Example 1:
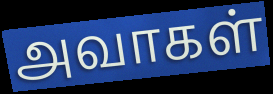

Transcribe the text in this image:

அவாகள்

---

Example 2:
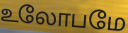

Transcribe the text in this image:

உலோபமே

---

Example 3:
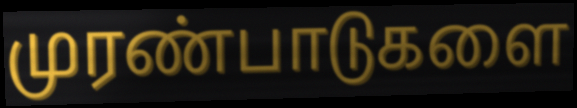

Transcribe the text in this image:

முரண்பாடுகளை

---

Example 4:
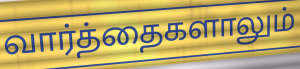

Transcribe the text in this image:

வார்த்தைகளாலும்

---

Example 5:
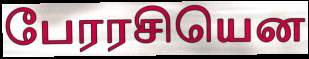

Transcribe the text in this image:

பேரரசியென